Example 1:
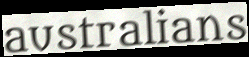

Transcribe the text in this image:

australians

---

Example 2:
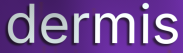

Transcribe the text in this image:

dermis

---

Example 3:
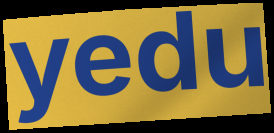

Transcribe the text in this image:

yedu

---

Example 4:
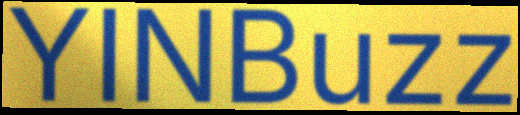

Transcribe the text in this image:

YINBuzz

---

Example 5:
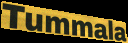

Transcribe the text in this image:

Tummala